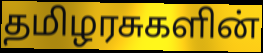
தமிழரசுகளின்